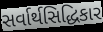
સર્વાર્થસિદ્ધિકાર